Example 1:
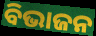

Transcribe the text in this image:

ବିଭାଜନ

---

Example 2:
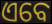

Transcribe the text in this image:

ଏବେ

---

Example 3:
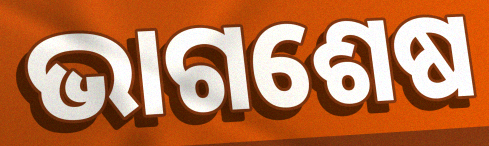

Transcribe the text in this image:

ଭାଗଶେଷ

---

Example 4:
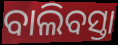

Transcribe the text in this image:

ବାଲିବସ୍ତା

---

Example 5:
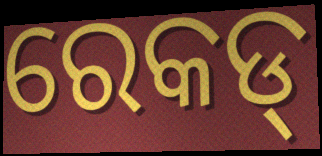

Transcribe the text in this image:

ରେକଡ୍